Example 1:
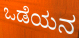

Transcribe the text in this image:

ಒಡೆಯನ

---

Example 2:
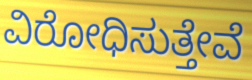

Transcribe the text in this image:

ವಿರೋಧಿಸುತ್ತೇವೆ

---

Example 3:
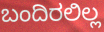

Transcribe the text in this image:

ಬಂದಿರಲಿಲ್ಲ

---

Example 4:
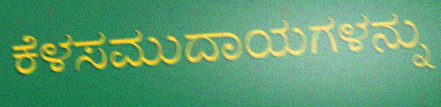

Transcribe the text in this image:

ಕೆಳಸಮುದಾಯಗಳನ್ನು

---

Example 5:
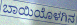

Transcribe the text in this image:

ಬಾಯಿಯೊಳಗಿನ